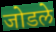
जोडले